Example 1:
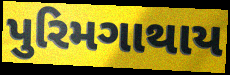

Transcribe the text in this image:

પુરિમગાથાય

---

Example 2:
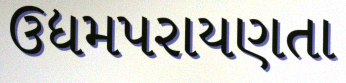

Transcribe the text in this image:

ઉદ્યમપરાયણતા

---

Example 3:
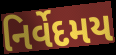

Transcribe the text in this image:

નિર્વેદમય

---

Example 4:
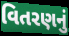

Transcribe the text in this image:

વિતરણનું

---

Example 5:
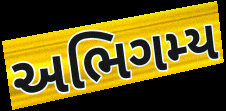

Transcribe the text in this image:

અભિગમ્ય